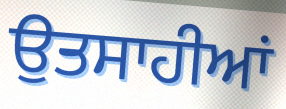
ਉਤਸਾਹੀਆਂ